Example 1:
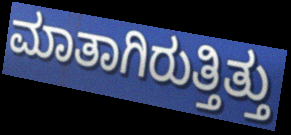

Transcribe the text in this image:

ಮಾತಾಗಿರುತ್ತಿತ್ತು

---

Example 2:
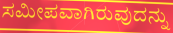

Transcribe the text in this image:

ಸಮೀಪವಾಗಿರುವುದನ್ನು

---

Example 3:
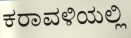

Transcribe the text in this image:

ಕರಾವಳಿಯಲ್ಲಿ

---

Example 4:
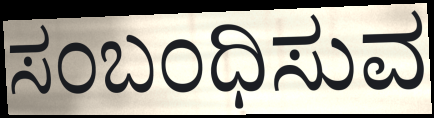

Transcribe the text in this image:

ಸಂಬಂಧಿಸುವ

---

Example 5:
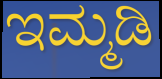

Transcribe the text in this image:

ಇಮ್ಮಡಿ